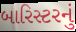
બારિસ્ટરનું